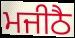
ਮਜੀਠੈ